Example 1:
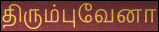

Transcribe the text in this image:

திரும்புவேனா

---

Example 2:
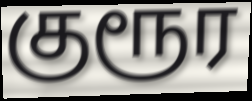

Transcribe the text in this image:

குரூர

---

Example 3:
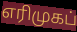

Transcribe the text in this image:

எரிமுகப்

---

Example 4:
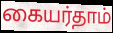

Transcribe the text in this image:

கையர்தாம்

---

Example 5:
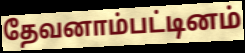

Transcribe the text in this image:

தேவனாம்பட்டினம்